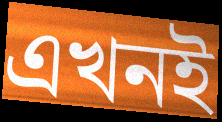
এখনই